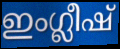
ഇംഗ്ലീഷ്